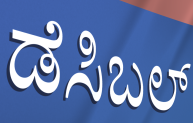
ಡೆಸಿಬಲ್